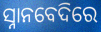
ସ୍ନାନବେଦିରେ